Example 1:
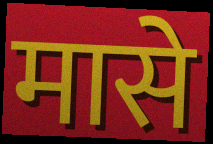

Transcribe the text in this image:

मासे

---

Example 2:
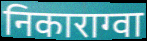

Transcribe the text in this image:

निकाराग्वा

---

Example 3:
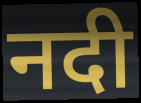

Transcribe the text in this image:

नदी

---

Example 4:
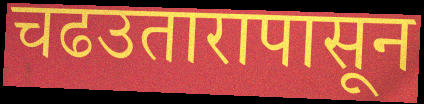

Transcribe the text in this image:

चढउतारापासून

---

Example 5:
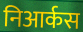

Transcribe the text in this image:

निआर्कस